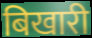
बिखारी